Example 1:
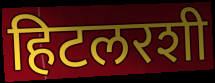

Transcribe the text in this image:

हिटलरशी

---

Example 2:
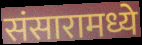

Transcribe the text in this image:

संसारामध्ये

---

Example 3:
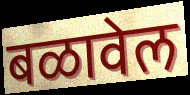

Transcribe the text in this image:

बळावेल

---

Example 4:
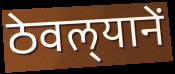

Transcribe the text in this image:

ठेवल्यानें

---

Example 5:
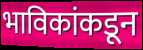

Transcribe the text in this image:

भाविकांकडून